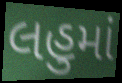
લહુમાં